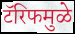
टॅरिफमुळे